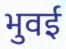
भुवई